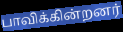
பாவிக்கின்றனர்